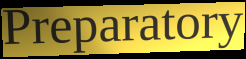
Preparatory